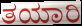
ತಯಾರಿ